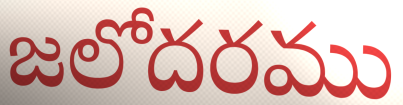
జలోదరము